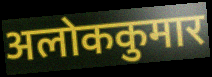
अलोककुमार